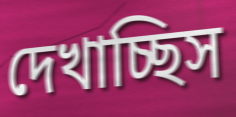
দেখাচ্ছিস